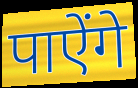
पाऐंगे